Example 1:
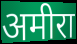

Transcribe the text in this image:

अमीरा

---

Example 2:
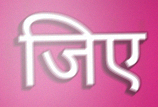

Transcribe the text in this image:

जिए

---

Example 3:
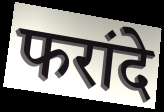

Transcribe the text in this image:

फरांदे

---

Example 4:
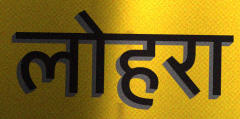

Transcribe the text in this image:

लोहरा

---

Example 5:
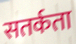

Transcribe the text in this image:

सतर्कता